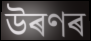
উৰণৰ